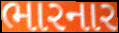
ભારનાર